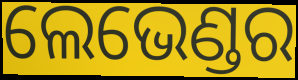
ଲେଭେଣ୍ଡର